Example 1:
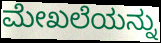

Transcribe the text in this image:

ಮೇಖಲೆಯನ್ನು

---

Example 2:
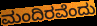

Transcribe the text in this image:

ಮಂದಿರವೆಂದು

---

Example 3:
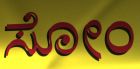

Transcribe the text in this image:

ಸೋಂ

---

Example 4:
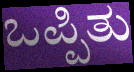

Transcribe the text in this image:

ಒಪ್ಪಿತು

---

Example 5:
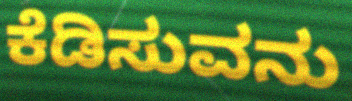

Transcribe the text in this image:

ಕೆಡಿಸುವನು